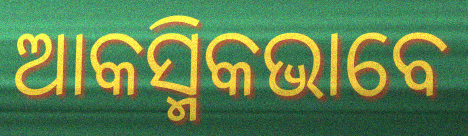
ଆକସ୍ମିକଭାବେ